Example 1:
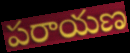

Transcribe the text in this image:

పరాయణ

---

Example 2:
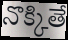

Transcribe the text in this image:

నొక్కితే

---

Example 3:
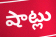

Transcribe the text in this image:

షాట్లు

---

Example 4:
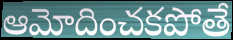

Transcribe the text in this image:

ఆమోదించకపోతే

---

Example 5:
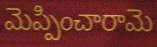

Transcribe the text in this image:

మెప్పించారామె